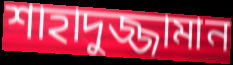
শাহাদুজ্জামান